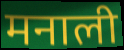
मनाली